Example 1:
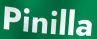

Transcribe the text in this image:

Pinilla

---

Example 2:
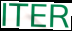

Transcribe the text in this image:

ITER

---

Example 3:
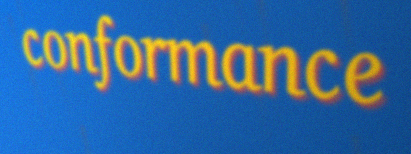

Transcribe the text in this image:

conformance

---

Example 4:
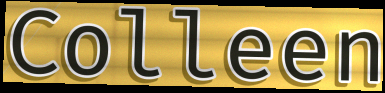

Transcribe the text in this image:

Colleen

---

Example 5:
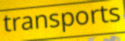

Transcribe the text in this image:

transports